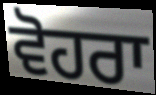
ਵੋਹਰਾ